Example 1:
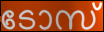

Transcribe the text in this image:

ടോസ്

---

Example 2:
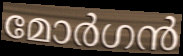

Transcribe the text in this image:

മോർഗൻ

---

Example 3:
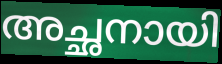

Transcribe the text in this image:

അച്ഛനായി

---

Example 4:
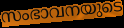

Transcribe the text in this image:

സംഭാവനയുടെ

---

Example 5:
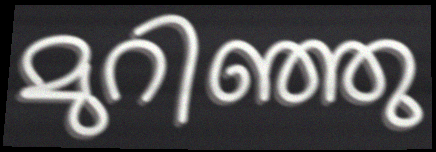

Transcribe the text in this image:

മുറിഞ്ഞു